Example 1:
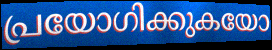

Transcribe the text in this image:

പ്രയോഗിക്കുകയോ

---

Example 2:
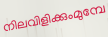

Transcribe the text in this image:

നിലവിളിക്കുംമുമ്പേ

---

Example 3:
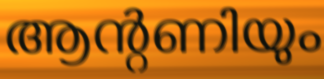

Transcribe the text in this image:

ആന്റണിയും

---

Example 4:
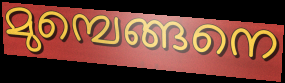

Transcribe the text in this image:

മുമ്പെങ്ങനെ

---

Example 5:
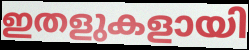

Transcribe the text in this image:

ഇതളുകളായി